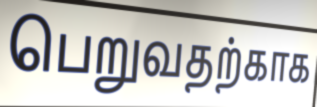
பெறுவதற்காக